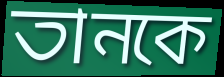
তানকে